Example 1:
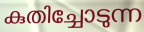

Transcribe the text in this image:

കുതിച്ചോടുന്ന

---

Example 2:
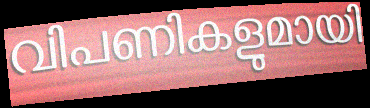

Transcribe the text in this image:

വിപണികളുമായി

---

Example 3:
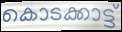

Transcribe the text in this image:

കൊടക്കാട്ട്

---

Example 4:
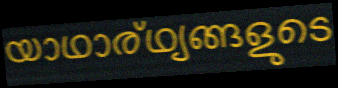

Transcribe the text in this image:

യാഥാര്ഥ്യങ്ങളുടെ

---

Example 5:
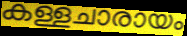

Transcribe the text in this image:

കള്ളചാരായം